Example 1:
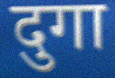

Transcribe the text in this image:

दुगा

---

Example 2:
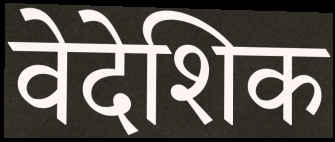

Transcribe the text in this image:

वेदेशिक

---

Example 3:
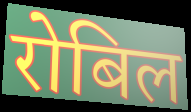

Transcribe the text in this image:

रोबिल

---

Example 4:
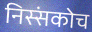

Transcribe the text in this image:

निस्संकोच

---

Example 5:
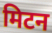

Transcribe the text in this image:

मिटन